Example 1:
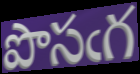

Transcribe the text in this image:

పొసఁగ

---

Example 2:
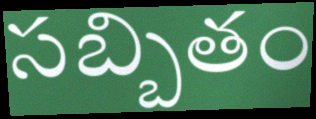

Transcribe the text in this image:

సబ్బితం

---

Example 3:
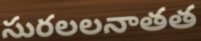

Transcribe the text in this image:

సురలలనాతత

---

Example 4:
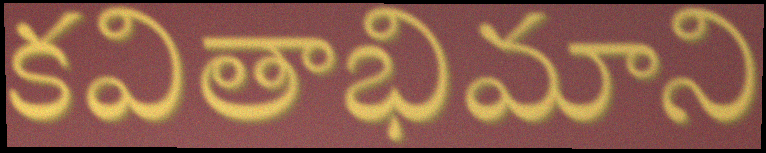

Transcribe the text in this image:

కవితాభిమాని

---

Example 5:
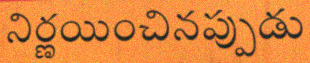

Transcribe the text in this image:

నిర్ణయించినప్పుడు